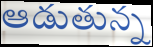
ఆడుతున్న